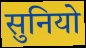
सुनियो